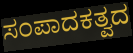
ಸಂಪಾದಕತ್ವದ